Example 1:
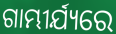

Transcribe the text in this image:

ଗାମ୍ଭୀର୍ଯ୍ୟରେ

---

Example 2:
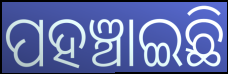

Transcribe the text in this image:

ପହଞ୍ଚାଇଛି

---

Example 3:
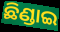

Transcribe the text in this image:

ଛିଣ୍ଡାଇ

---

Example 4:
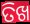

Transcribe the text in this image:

ତିଖ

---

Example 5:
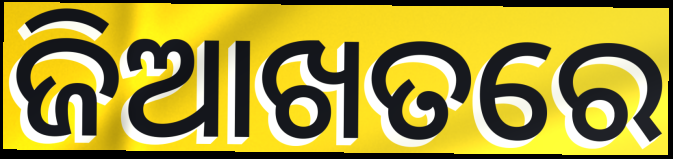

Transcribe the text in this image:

ଜିଆଖତରେ